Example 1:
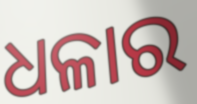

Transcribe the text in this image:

ଧଳାର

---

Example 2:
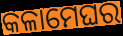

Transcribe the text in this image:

କଳାମେଘର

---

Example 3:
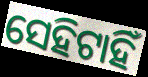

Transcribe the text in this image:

ସେହିଟାହିଁ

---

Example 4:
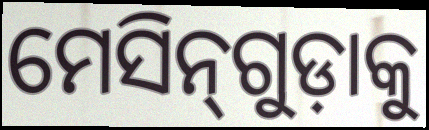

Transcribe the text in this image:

ମେସିନ୍‌ଗୁଡ଼ାକୁ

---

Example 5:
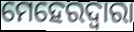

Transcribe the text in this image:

ମେହେରଦ୍ୱାରା